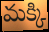
మక్కి